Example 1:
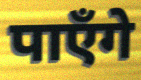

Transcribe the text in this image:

पाएँगे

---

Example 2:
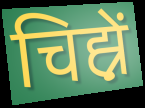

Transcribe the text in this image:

चिह्नें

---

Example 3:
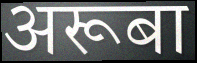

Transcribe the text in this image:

अरूबा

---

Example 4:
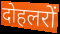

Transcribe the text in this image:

दोहलरों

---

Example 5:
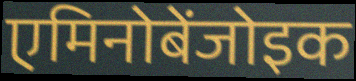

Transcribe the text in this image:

एमिनोबेंजोइक